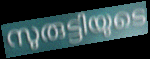
സുരുട്ടിയുടെ